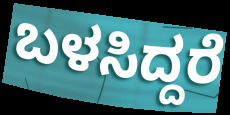
ಬಳಸಿದ್ದರೆ